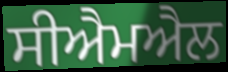
ਸੀਐਮਐਲ